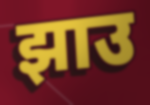
झाउ